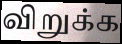
விறுக்க